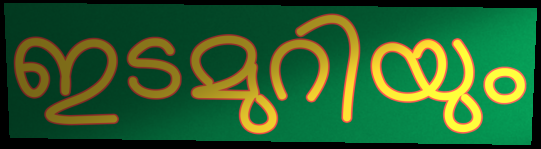
ഇടമുറിയും